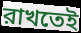
রাখতেই